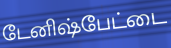
டேனிஷ்பேட்டை